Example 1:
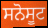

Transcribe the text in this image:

ਸਨੋਸੂਟ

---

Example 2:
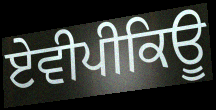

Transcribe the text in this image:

ਏਵੀਪੀਕਿਊ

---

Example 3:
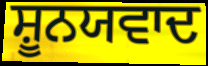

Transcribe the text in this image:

ਸ਼ੂਨਯਵਾਦ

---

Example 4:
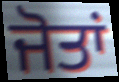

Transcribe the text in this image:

ਜੋਤਾਂ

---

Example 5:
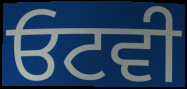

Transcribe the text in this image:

ਓਟਵੀ